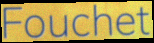
Fouchet